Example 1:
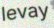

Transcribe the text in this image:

levay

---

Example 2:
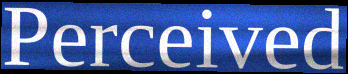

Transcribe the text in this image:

Perceived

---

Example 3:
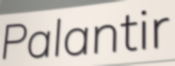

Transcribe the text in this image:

Palantir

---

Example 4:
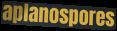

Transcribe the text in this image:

aplanospores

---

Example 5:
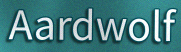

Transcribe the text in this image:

Aardwolf